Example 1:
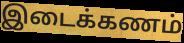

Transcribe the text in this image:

இடைக்கணம்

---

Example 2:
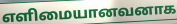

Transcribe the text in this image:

எளிமையானவனாக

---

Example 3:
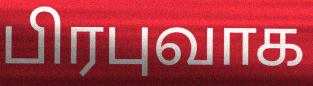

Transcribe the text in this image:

பிரபுவாக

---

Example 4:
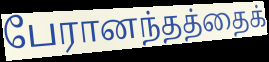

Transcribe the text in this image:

பேரானந்தத்தைக்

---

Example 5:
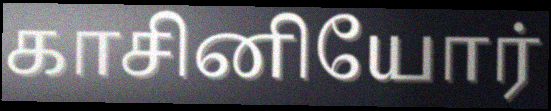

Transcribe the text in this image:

காசினியோர்